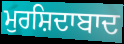
ਮੁਰਸ਼ਿਦਾਬਾਦ